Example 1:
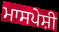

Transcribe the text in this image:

ਮਾਸਪੇਸ਼ੀ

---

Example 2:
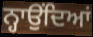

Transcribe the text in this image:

ਨ੍ਹਾਉਂਦਿਆਂ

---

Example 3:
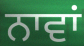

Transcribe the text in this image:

ਨਾਵਾਂ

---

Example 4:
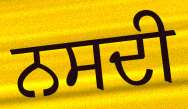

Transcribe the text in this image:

ਨਸਦੀ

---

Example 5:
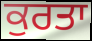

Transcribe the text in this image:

ਕੁਰਤਾ